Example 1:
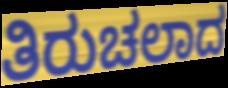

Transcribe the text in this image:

ತಿರುಚಲಾದ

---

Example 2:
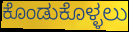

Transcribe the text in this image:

ಕೊಂಡುಕೊಳ್ಳಲು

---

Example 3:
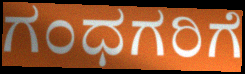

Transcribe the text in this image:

ಗಂಧಗರಿಗೆ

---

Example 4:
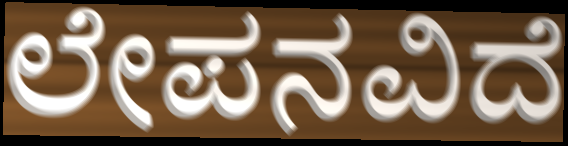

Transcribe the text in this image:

ಲೇಪನವಿದೆ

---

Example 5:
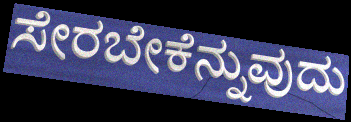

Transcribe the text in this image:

ಸೇರಬೇಕೆನ್ನುವುದು